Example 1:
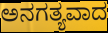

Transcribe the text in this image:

ಅನಗತ್ಯವಾದ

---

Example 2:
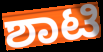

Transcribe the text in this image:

ಶಾಟಿ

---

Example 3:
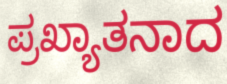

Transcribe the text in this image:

ಪ್ರಖ್ಯಾತನಾದ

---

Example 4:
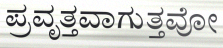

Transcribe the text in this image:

ಪ್ರವೃತ್ತವಾಗುತ್ತವೋ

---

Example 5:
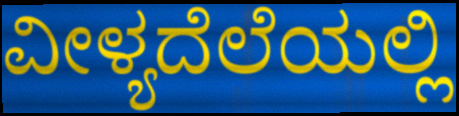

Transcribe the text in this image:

ವೀಳ್ಯದೆಲೆಯಲ್ಲಿ